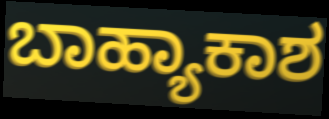
ಬಾಹ್ಯಾಕಾಶ